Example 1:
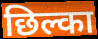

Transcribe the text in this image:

छिल्का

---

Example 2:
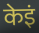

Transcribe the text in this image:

केइं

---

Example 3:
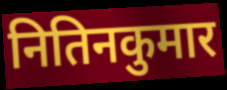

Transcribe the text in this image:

नितिनकुमार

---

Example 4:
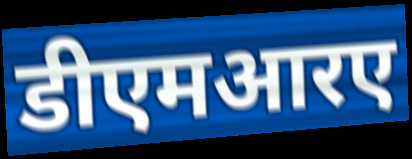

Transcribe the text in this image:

डीएमआरए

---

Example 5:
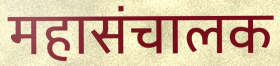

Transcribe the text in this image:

महासंचालक